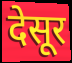
देसूर